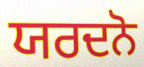
ਯਰਦਨੋ